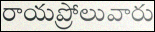
రాయప్రోలువారు